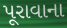
પૂરાવાના